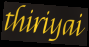
thiriyai